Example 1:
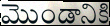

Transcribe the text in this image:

మొండానికి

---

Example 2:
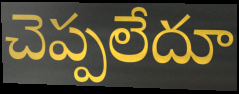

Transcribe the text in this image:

చెప్పలేదూ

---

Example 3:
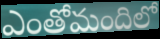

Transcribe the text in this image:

ఎంతోమందిలో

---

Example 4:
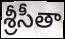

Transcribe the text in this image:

శ్రీసీతా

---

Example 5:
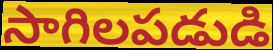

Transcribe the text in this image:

సాగిలపడుడి